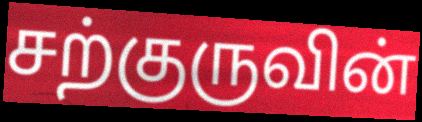
சற்குருவின்